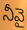
నీవై